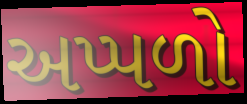
અપ્પળો